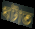
ঘটাত